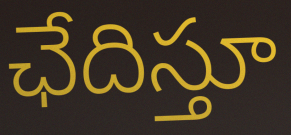
ఛేదిస్తూ